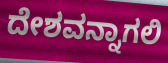
ದೇಶವನ್ನಾಗಲಿ